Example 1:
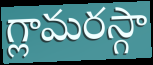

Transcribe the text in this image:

గ్లామరస్గా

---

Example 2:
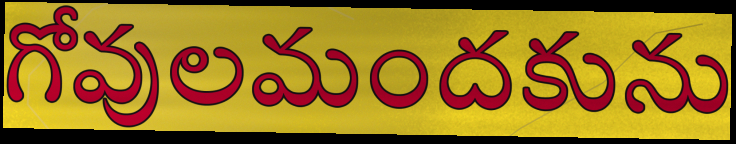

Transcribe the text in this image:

గోవులమందకును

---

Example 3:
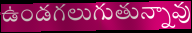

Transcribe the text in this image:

ఉండగలుగుతున్నావు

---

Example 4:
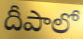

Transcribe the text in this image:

దీపాలో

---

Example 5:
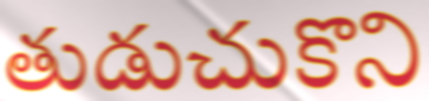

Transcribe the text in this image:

తుడుచుకొని